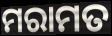
ମରାମତ